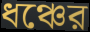
ধঞ্চের